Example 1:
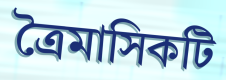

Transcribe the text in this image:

ত্রৈমাসিকটি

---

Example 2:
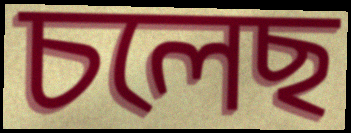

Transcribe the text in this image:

চলেছ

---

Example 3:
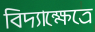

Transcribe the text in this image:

বিদ্যাক্ষেত্রে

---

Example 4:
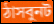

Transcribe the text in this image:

ঠাসবুনট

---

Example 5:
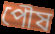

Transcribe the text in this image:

পৌষ